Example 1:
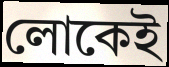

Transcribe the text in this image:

লোকেই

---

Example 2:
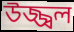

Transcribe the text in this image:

উজ্জ্বল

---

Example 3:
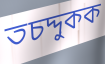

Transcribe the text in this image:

তচদ্দুকক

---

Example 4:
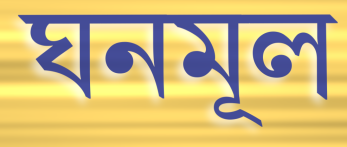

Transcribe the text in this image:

ঘনমূল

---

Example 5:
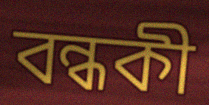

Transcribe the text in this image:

বন্ধকী